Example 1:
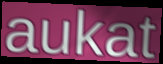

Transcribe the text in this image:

aukat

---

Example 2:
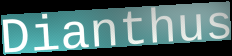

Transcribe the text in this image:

Dianthus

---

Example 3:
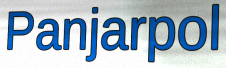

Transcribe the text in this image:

Panjarpol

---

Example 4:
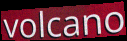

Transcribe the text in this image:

volcano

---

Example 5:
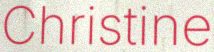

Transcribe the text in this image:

Christine